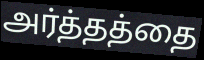
அர்த்தத்தை